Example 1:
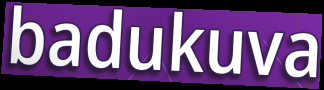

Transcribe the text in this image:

badukuva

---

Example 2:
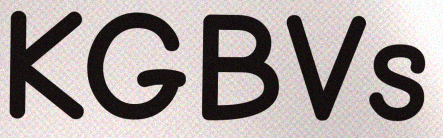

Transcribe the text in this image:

KGBVs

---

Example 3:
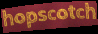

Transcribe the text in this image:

hopscotch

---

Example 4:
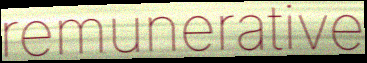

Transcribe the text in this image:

remunerative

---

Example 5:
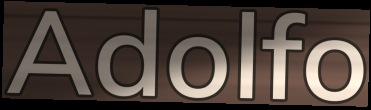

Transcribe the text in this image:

Adolfo